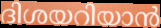
ദിശയറിയാൻ